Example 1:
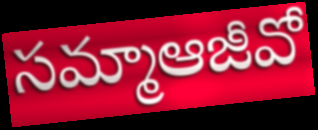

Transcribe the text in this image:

సమ్మాఆజీవో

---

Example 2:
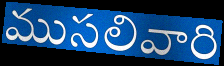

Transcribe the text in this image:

ముసలివారి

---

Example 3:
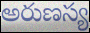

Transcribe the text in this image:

అరుణస్య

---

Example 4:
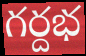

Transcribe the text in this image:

గర్దభ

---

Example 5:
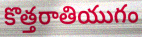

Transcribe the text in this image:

కొత్తరాతియుగం